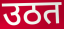
उठत